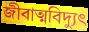
জীবাত্মবিদ্যুৎ